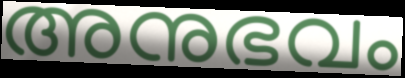
അനുഭവം